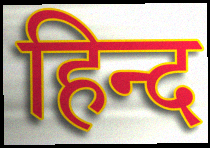
हिन्द